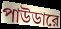
পাউডারে